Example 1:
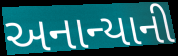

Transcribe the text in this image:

અનાન્યાની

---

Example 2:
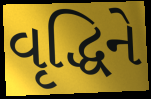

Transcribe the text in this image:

વૃદ્ધિને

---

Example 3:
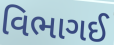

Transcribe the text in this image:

વિભાગઈ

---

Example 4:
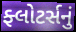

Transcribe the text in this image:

ફ્લોટર્સનું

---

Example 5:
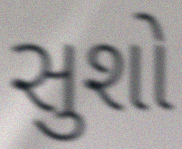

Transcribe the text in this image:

સુશો